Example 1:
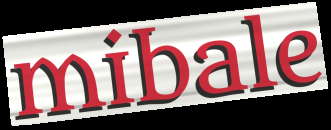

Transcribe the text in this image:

mibale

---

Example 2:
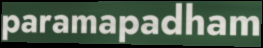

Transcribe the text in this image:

paramapadham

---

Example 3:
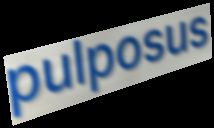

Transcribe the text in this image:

pulposus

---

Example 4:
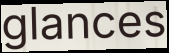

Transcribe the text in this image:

glances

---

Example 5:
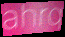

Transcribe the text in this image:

ahrq